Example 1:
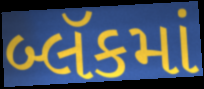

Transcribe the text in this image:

બ્લૅકમાં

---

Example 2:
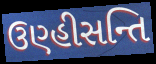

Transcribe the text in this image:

ઉણ્હીસન્તિ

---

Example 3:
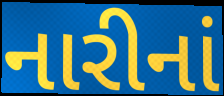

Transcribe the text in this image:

નારીનાં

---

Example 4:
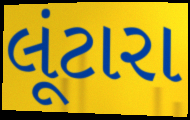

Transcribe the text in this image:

લૂંટારા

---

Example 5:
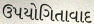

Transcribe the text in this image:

ઉપયોગિતાવાદ